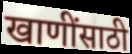
खाणींसाठी